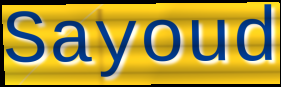
Sayoud